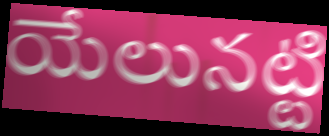
యేలునట్టి